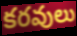
కరవులు